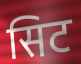
सिट